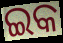
ଇକ